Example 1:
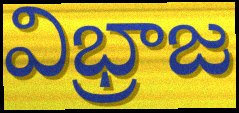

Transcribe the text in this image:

విభ్రాజ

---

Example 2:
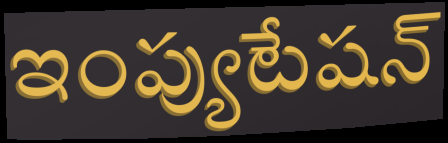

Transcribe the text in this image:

ఇంప్యుటేషన్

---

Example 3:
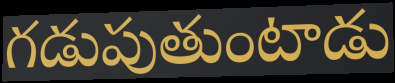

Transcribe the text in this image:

గడుపుతుంటాడు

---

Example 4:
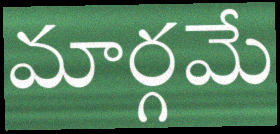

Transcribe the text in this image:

మార్గమే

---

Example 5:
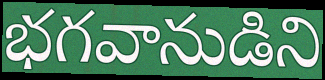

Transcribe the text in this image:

భగవానుడిని